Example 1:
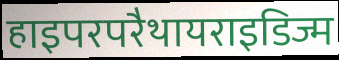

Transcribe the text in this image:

हाइपरपरैथायराइडिज्म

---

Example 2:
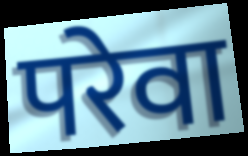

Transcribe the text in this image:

परेवा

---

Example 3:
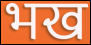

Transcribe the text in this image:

भख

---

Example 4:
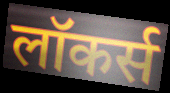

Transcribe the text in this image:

लॉकर्स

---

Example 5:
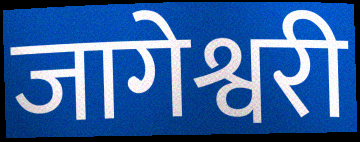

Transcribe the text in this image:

जागेश्वरी